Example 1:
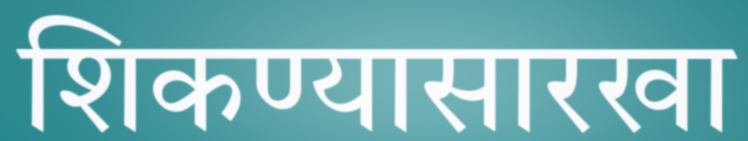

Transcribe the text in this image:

शिकण्यासारखा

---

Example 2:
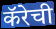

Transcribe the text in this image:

कॅरेची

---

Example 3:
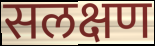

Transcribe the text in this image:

सलक्षण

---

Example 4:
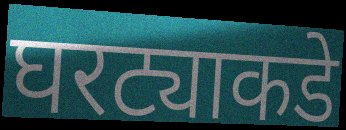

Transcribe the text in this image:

घरट्याकडे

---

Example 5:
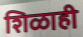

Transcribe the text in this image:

शिळाही